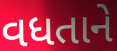
વધતાને